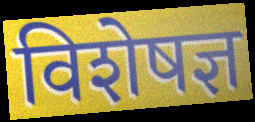
विशेषज्ञ